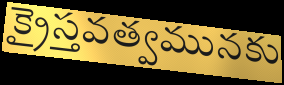
క్రైస్తవత్వమునకు